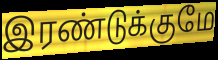
இரண்டுக்குமே